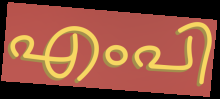
എംപി